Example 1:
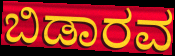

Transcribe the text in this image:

ಬಿಡಾರವ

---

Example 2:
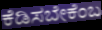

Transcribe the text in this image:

ಕೆಡಿಸಬೇಕೆಂಬ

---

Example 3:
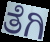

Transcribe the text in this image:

ತೆಗಿ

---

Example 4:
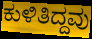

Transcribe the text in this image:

ಕುಳಿತಿದ್ದವು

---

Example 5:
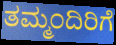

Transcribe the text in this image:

ತಮ್ಮಂದಿರಿಗೆ